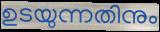
ഉടയുന്നതിനും